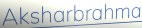
Aksharbrahma